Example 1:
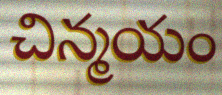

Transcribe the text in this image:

చిన్మయం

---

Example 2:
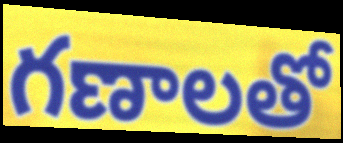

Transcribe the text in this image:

గణాలతో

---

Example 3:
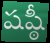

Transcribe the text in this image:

షష్ఠీ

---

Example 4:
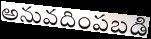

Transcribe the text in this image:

అనువదింపబడి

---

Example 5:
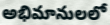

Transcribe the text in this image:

అభిమానులలో